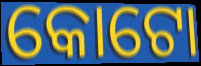
କୋଟୋ